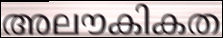
അലൗകികത